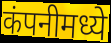
कंपनीमध्ये